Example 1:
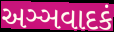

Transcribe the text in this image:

અઞ્ઞવાદકં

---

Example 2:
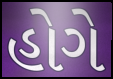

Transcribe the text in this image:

હોગે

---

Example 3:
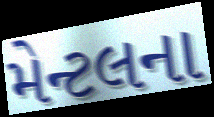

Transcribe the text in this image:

મેન્ટલના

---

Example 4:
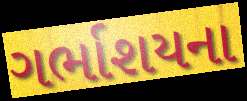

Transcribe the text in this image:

ગર્ભાશયના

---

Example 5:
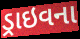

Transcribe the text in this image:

ડ્રાઇવના